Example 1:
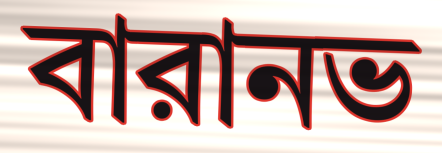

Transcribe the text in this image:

বারানভ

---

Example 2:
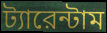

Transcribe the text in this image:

ট্যারেন্টাম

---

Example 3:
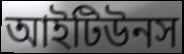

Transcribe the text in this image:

আইটিউনস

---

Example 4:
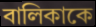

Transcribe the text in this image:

বালিকাকে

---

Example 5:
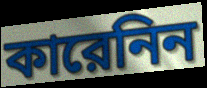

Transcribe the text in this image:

কারেনিন